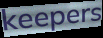
keepers